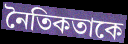
নৈতিকতাকে